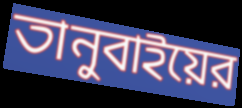
তানুবাইয়ের